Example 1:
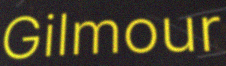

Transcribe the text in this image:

Gilmour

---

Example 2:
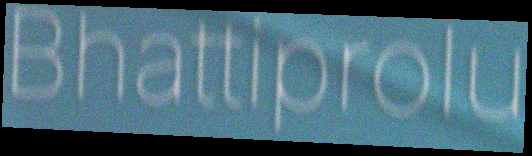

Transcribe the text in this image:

Bhattiprolu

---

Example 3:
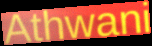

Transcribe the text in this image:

Athwani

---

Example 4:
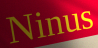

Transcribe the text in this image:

Ninus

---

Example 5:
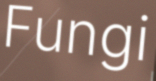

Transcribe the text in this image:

Fungi